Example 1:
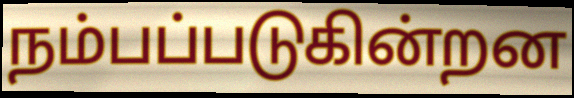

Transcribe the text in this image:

நம்பப்படுகின்றன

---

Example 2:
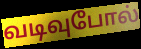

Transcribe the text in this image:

வடிவுபோல்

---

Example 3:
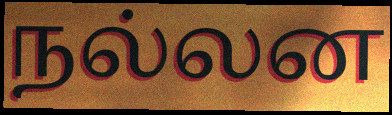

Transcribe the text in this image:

நல்லன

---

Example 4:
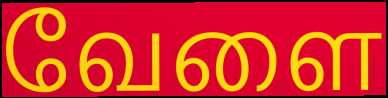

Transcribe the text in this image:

வேளை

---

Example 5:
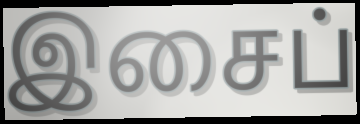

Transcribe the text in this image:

இசைப்